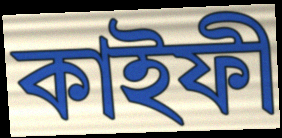
কাইফী